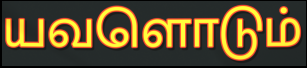
யவளொடும்